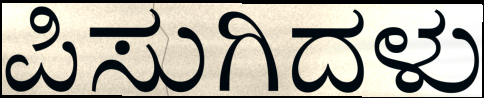
ಪಿಸುಗಿದಳು